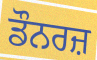
ਡੌਨਰਜ਼